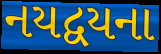
નયદ્વયના